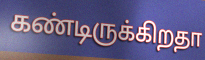
கண்டிருக்கிறதா